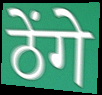
ठेंगे